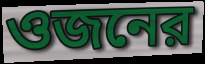
ওজনের